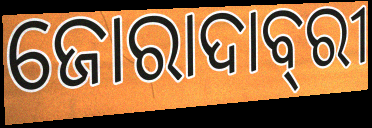
ଜୋରାଦାବ୍‌ରୀ